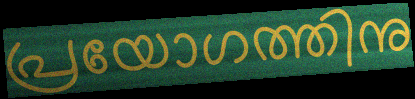
പ്രയോഗത്തിനു